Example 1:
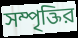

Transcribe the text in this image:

সম্পৃক্তির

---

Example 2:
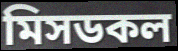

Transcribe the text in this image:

মিসডকল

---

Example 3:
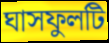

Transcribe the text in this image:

ঘাসফুলটি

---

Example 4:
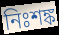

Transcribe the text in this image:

নিঃশঙ্ক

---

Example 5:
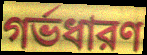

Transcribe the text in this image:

গর্ভধারণ